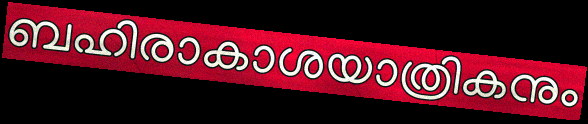
ബഹിരാകാശയാത്രികനും